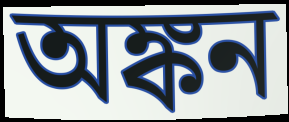
অঙ্কন